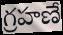
గ్రహణే